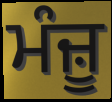
ਮੰਜ਼ੂ